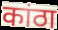
कांठा